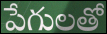
పేగులతో